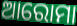
ଆରୋମା